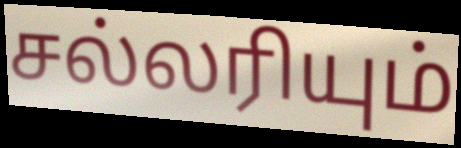
சல்லரியும்